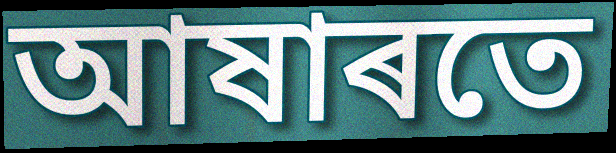
আষাৰতে